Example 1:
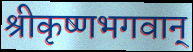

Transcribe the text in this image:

श्रीकृष्णभगवान्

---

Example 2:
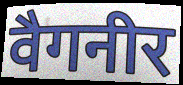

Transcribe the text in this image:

वैगनीर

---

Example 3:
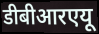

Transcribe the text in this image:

डीबीआरएयू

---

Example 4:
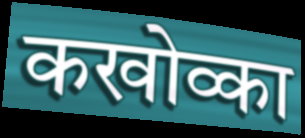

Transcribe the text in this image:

कखोव्का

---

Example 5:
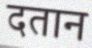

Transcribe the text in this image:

दतान